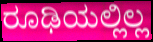
ರೂಢಿಯಲ್ಲಿಲ್ಲ